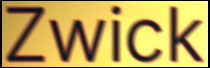
Zwick